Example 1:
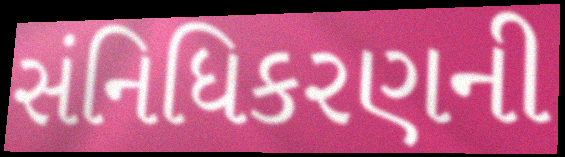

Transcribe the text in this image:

સંનિધિકરણની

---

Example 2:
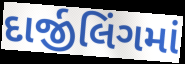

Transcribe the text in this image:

દાર્જીલિંગમાં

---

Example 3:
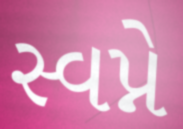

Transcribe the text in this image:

સ્વપ્ને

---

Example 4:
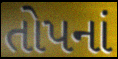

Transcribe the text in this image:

તોપનાં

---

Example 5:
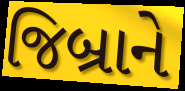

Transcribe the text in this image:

જિબ્રાને